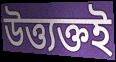
উত্ত্যক্তই